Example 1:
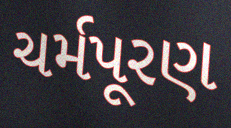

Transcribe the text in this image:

ચર્મપૂરણ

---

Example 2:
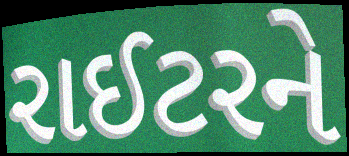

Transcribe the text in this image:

રાઈટરને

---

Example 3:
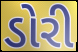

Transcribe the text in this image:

ડોરી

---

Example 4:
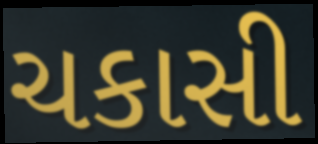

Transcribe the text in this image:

ચકાસી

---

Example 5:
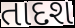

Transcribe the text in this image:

તાદશ